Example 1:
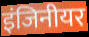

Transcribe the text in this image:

इंजिनीयर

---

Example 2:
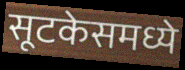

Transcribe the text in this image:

सूटकेसमध्ये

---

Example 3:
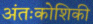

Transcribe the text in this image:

अंतःकोशिकी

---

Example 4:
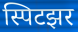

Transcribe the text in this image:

स्पिटझर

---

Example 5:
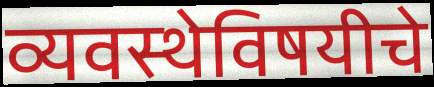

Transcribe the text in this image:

व्यवस्थेविषयीचे